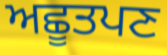
ਅਛੂਤਪਣ